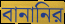
বানানির